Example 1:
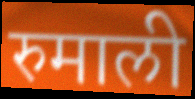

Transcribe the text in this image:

रुमाली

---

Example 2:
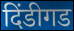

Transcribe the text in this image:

दिंडीगड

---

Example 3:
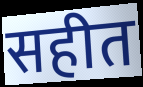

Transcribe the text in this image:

सहीत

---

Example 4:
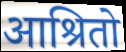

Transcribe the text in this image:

आश्रितो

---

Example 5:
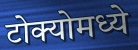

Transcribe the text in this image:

टोक्योमध्ये